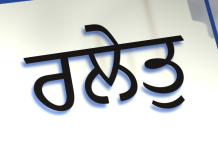
ਰਲੇਤੁ